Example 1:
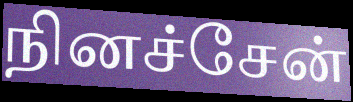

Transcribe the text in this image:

நினச்சேன்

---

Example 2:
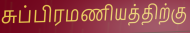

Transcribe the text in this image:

சுப்பிரமணியத்திற்கு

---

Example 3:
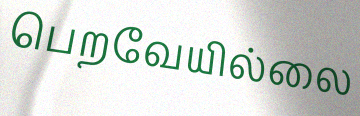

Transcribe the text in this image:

பெறவேயில்லை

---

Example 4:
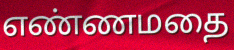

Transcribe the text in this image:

எண்ணமதை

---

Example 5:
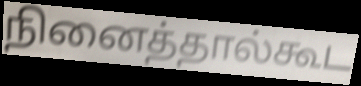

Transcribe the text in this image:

நினைத்தால்கூட